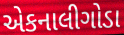
એકનાલીગોડા